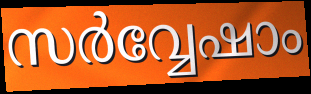
സർവ്വേഷാം